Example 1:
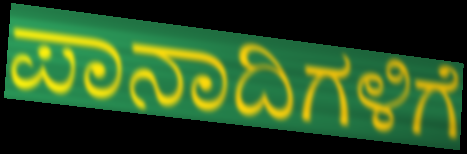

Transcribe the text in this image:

ಪಾನಾದಿಗಳಿಗೆ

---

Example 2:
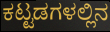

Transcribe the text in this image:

ಕಟ್ಟಡಗಳಲ್ಲಿನ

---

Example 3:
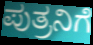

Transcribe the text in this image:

ಪುತ್ರನಿಗೆ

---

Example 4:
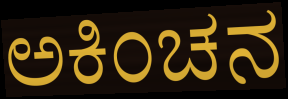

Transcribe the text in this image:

ಅಕಿಂಚನ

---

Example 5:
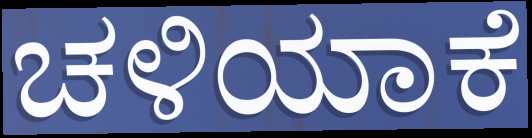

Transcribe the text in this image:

ಚಳಿಯಾಕೆ